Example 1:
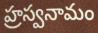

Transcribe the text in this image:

హ్రస్వనామం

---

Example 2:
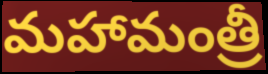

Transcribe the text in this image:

మహామంత్రీ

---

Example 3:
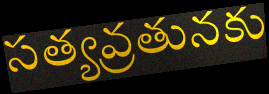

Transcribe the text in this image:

సత్యవ్రతునకు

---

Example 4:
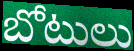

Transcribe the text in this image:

బోటులు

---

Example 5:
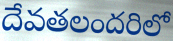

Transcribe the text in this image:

దేవతలందరిలో